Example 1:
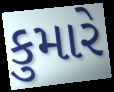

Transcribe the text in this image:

કુમારે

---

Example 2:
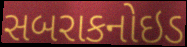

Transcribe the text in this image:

સબરાકનોઇડ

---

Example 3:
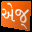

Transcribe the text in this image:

એજ્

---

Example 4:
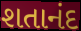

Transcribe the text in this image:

શતાનંદ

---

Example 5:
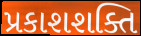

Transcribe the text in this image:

પ્રકાશશક્તિ